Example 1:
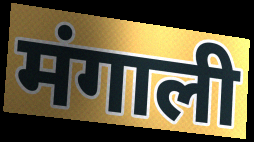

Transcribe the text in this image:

मंगाली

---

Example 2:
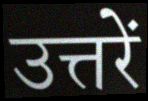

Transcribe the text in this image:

उत्तरें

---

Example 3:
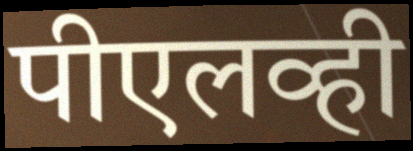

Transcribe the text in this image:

पीएलव्ही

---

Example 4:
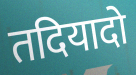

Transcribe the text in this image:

तदियादो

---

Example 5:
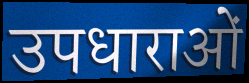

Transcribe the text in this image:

उपधाराओं